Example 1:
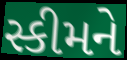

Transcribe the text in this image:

સ્કીમને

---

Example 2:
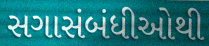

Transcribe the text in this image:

સગાસંબંધીઓથી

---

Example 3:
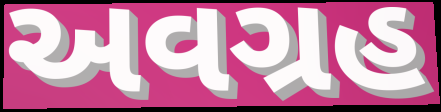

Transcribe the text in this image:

અવગ્રહ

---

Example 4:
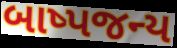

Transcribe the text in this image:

બાષ્પજન્ય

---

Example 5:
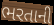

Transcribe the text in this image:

ભરતાની